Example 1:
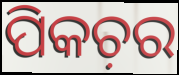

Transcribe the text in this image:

ପିକଚ଼ର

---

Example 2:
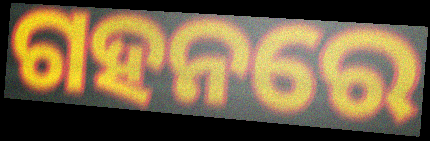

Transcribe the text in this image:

ଗହନରେ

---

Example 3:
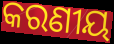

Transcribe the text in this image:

କରଣୀୟ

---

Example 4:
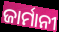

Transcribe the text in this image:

ଜାର୍ମାନୀ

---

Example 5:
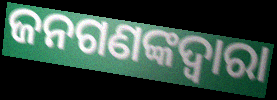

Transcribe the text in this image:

ଜନଗଣଙ୍କଦ୍ୱାରା